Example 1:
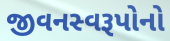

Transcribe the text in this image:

જીવનસ્વરૂપોનો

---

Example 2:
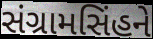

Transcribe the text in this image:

સંગ્રામસિંહને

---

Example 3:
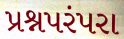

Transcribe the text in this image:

પ્રશ્નપરંપરા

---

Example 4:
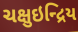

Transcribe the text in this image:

ચક્ષુઇન્દ્રિય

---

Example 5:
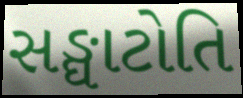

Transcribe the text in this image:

સઙ્ઘાટોતિ